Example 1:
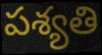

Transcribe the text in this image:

పశ్యతి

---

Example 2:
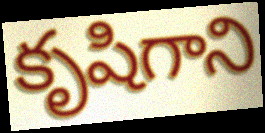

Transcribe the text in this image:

కృషిగాని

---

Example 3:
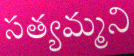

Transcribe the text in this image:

సత్యమ్మని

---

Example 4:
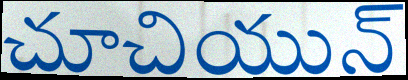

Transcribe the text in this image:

చూచియున్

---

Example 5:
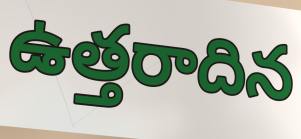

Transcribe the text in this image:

ఉత్తరాదిన